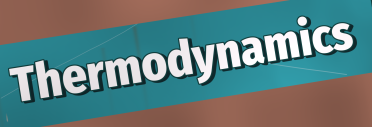
Thermodynamics